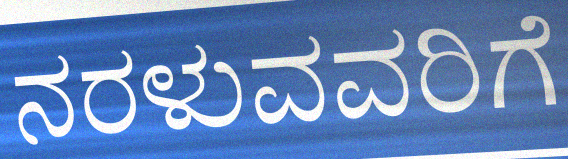
ನರಳುವವರಿಗೆ